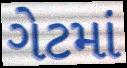
ગેટમાં